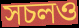
সচলও